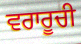
ਵਰਾਰੂਚੀ